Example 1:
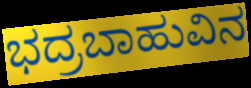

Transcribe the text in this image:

ಭದ್ರಬಾಹುವಿನ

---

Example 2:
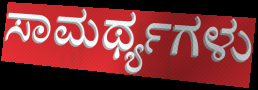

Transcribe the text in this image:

ಸಾಮರ್ಥ್ಯಗಳು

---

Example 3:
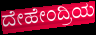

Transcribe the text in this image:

ದೇಹೇಂದ್ರಿಯ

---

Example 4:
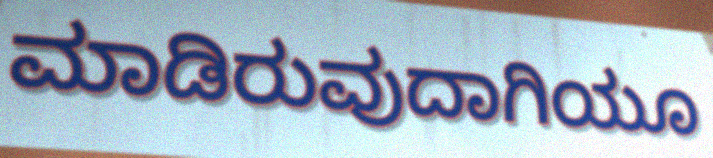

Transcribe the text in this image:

ಮಾಡಿರುವುದಾಗಿಯೂ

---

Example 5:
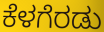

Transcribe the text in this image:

ಕೆಳಗೆರಡು